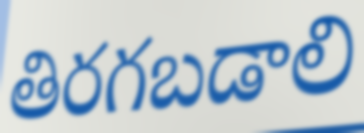
తిరగబడాలి